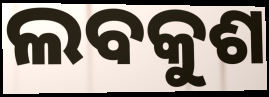
ଲବକୁଶ